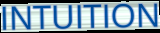
INTUITION